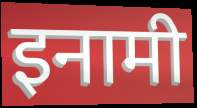
इनामी